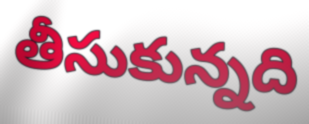
తీసుకున్నది